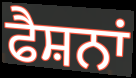
ਫੈਸ਼ਨਾਂ